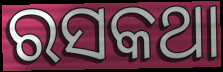
ରସକଥା